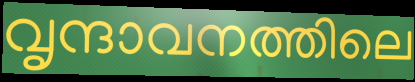
വൃന്ദാവനത്തിലെ